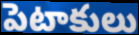
పెటాకులు